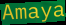
Amaya